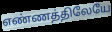
எண்ணத்திலேயே